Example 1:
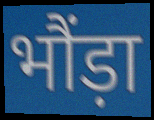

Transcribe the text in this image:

भौंड़ा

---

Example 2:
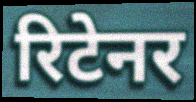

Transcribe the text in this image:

रिटेनर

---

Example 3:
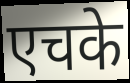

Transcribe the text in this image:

एचके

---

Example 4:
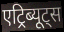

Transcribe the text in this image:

एट्रिब्यूट्स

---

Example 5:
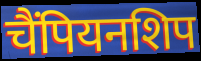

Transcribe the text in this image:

चैंपियनशिप